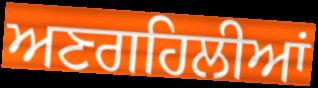
ਅਣਗਹਿਲੀਆਂ